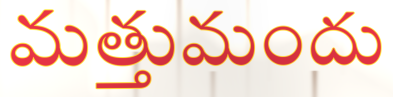
మత్తుమందు